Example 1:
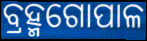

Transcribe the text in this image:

ବ୍ରହ୍ମଗୋପାଳ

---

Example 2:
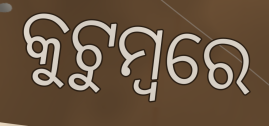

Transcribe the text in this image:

କୁଟୁମ୍ଵରେ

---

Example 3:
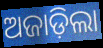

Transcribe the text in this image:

ଅଜାଡ଼ିଲା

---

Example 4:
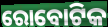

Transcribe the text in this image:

ରୋବୋଟିକ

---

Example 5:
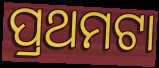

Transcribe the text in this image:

ପ୍ରଥମଟା